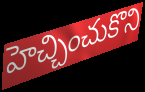
హెచ్చించుకొని